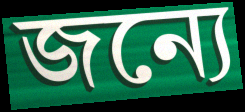
জন্যে